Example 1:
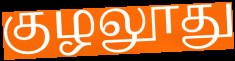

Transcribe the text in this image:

குழலூது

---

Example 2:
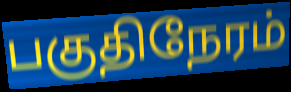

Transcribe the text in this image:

பகுதிநேரம்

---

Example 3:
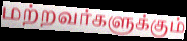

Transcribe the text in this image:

மற்றவர்களுக்கும்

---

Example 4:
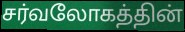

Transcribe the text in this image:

சர்வலோகத்தின்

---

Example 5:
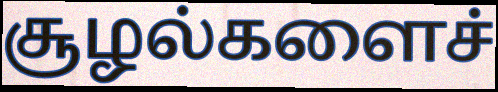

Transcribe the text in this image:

சூழல்களைச்